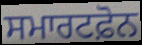
ਸਮਾਰਟਫ਼ੋਨ